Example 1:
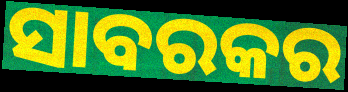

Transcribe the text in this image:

ସାବରକର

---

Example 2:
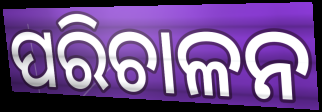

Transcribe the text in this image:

ପରିଚାଳନ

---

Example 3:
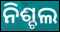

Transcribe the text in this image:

ନିଶ୍ଚଲ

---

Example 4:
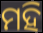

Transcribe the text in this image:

ମହି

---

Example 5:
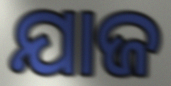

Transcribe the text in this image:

ଯାଜ